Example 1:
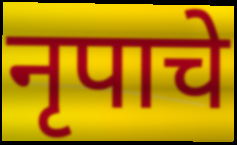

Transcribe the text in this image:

नृपाचे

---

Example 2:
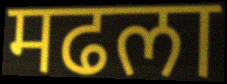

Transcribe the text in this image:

मढला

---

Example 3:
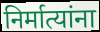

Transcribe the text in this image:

निर्मात्यांना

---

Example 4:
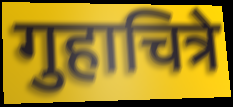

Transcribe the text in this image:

गुहाचित्रे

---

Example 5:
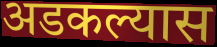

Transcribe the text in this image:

अडकल्यास